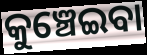
କୁଞ୍ଚେଇବା